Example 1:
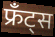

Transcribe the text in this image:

फ्रँट्स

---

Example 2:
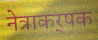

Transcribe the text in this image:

नेत्राकर्षक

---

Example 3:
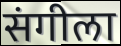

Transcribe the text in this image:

संगीला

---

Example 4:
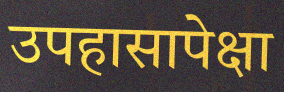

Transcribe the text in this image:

उपहासापेक्षा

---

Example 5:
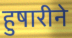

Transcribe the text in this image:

हुषारीने